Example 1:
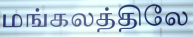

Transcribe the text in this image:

மங்கலத்திலே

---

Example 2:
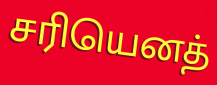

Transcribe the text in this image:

சரியெனத்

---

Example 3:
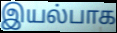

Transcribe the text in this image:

இயல்பாக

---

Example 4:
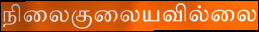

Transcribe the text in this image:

நிலைகுலையவில்லை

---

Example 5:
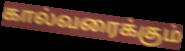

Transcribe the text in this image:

கால்வரைக்கும்